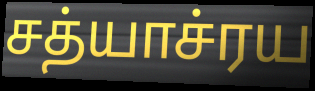
சத்யாச்ரய